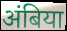
अंबिया